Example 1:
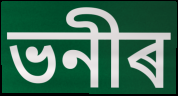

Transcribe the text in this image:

ভনীৰ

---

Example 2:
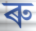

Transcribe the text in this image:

ৰু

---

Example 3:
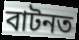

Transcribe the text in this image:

বাটনত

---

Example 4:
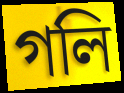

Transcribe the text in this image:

গলি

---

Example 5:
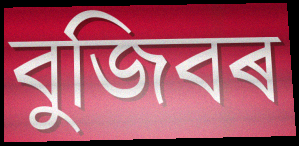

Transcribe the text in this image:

বুজিবৰ